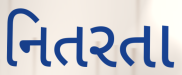
નિતરતા